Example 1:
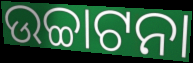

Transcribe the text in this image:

ଉଚ୍ଚାଟନା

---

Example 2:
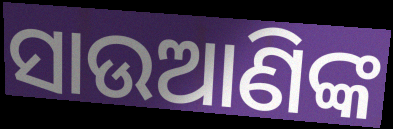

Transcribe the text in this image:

ସାଉଆଣିଙ୍କ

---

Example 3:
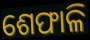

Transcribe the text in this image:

ଶେଫାଳି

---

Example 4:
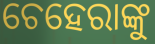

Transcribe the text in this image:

ଚେହେରାଙ୍କୁ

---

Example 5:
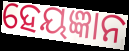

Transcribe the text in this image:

ହେୟଜ୍ଞାନ